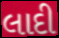
લાદી